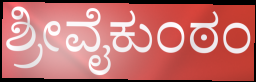
ಶ್ರೀವೈಕುಂಠಂ